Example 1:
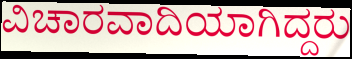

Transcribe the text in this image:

ವಿಚಾರವಾದಿಯಾಗಿದ್ದರು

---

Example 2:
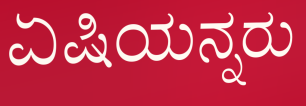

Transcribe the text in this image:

ಏಷಿಯನ್ನರು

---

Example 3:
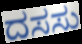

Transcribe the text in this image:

ದಸಸು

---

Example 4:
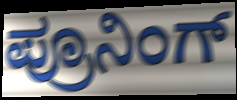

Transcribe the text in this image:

ಪ್ರೂನಿಂಗ್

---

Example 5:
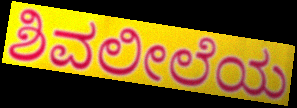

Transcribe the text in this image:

ಶಿವಲೀಲೆಯ